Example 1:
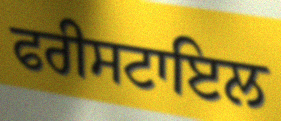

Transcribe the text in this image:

ਫਰੀਸਟਾਇਲ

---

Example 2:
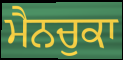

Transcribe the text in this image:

ਮੈਨਚੁਕਾ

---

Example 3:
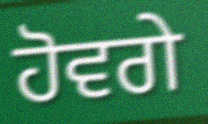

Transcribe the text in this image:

ਹੋਵਗੇ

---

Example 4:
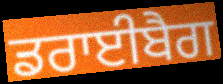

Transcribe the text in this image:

ਡਰਾਈਬੈਗ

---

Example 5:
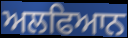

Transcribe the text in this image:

ਅਲਫਿਆਨ